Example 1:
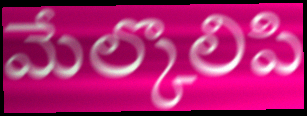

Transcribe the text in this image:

మేల్కొలిపి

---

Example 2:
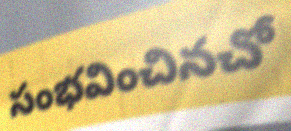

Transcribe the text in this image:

సంభవించినచో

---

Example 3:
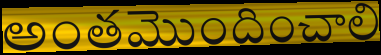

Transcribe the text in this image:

అంతమొందించాలి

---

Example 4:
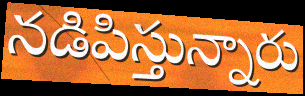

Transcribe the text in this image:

నడిపిస్తున్నారు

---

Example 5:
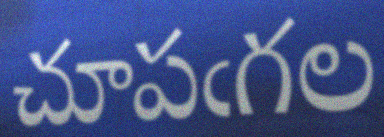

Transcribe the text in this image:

చూపఁగల